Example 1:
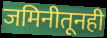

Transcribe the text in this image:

जमिनीतूनही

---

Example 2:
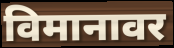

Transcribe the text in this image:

विमानावर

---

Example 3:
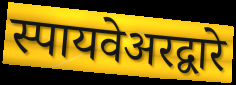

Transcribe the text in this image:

स्पायवेअरद्वारे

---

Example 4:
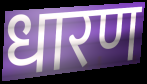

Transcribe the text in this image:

धारण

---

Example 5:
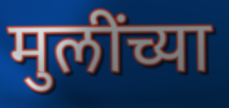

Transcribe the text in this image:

मुलींच्या